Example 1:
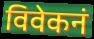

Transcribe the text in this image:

विवेकनं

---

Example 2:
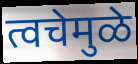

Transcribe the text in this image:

त्वचेमुळे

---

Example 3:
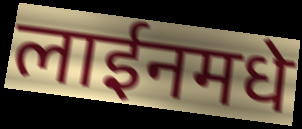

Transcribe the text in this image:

लाईनमधे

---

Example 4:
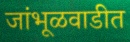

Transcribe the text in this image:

जांभूळवाडीत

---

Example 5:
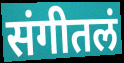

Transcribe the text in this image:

संगीतलं